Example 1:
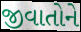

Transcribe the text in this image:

જીવાતોને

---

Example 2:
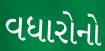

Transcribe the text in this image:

વધારોનો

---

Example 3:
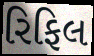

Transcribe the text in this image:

રિફિલ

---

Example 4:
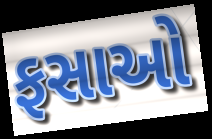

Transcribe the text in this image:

ફસાઓ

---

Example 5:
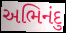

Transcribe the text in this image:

અભિનંદુ